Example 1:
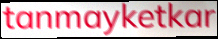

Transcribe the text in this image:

tanmayketkar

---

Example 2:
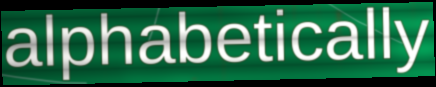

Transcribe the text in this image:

alphabetically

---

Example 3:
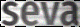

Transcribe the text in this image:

seva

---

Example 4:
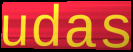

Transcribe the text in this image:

udas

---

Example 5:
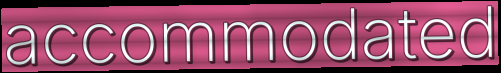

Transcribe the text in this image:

accommodated